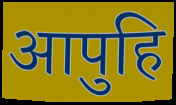
आपुहि